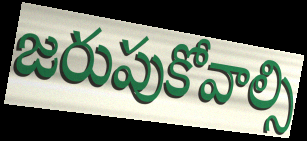
జరుపుకోవాల్సి